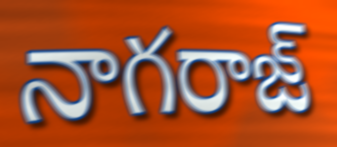
నాగరాజ్